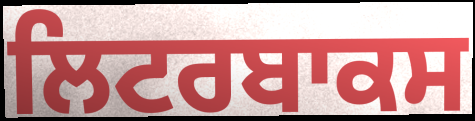
ਲਿਟਰਬਾਕਸ